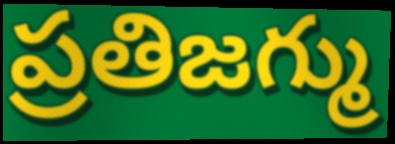
ప్రతిజగ్ము